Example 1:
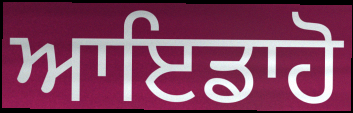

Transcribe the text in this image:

ਆਇਡਾਹੋ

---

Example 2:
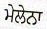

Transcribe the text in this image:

ਮੇਲੇਨਾ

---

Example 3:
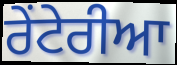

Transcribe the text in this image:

ਰੇਂਟੇਰੀਆ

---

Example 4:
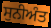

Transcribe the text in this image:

ਸੁਨੀਅੰਤ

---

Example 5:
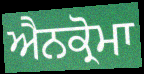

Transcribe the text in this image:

ਐਨਕ੍ਰੋਮਾ